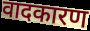
वादकारण